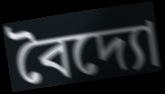
বৈদ্যো